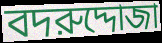
বদরুদ্দোজা